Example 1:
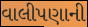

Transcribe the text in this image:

વાલીપણાની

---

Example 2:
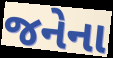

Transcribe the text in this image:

જનેના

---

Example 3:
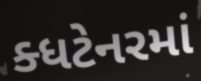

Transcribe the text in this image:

ક્ધટેનરમાં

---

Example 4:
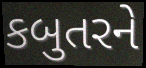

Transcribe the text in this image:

કબુતરને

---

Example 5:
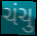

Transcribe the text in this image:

ચંચુ